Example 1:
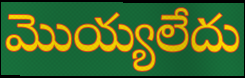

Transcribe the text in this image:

మొయ్యలేదు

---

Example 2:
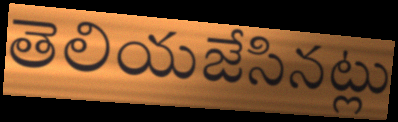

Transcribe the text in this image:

తెలియజేసినట్లు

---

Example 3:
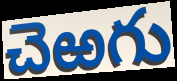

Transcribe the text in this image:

చెఱగు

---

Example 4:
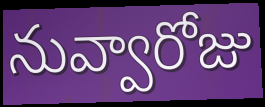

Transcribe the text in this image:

నువ్వారోజు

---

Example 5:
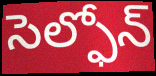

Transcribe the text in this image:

సెల్ఫోన్